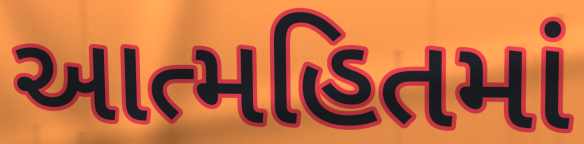
આત્મહિતમાં